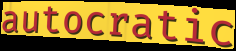
autocratic